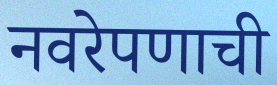
नवरेपणाची